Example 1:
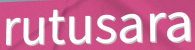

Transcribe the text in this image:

rutusara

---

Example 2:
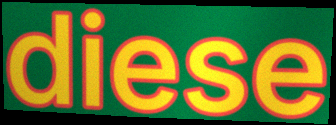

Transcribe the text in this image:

diese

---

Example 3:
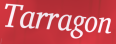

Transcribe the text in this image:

Tarragon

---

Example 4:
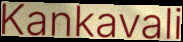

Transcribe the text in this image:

Kankavali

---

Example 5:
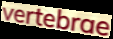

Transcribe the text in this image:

vertebrae